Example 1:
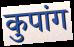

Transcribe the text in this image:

कुपांग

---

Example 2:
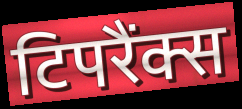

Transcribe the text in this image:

टिपरैंक्स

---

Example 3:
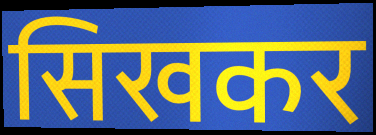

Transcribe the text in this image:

सिखकर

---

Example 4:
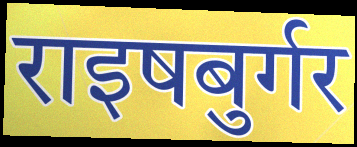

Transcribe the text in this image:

राइषबुर्गर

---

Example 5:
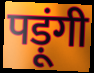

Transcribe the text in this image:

पड़ूंगी